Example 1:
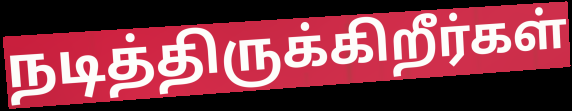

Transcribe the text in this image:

நடித்திருக்கிறீர்கள்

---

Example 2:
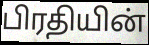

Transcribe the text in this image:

பிரதியின்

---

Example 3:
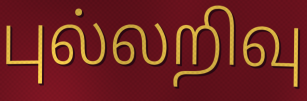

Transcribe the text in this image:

புல்லறிவு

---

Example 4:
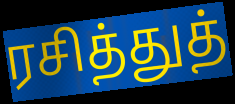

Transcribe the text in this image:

ரசித்துத்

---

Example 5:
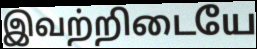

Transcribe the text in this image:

இவற்றிடையே